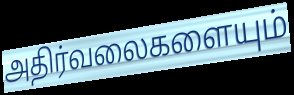
அதிர்வலைகளையும்